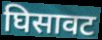
घिसावट